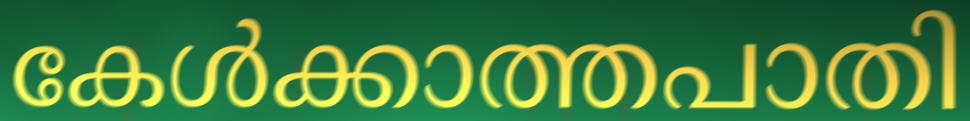
കേൾക്കാത്തപാതി